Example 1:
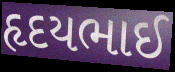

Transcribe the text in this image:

હૃદયભાઈ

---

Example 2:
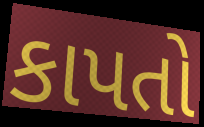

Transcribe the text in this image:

કાપતો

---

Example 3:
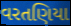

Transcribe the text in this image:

વરતણિયા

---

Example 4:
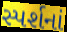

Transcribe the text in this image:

સ્પર્શનાં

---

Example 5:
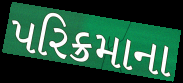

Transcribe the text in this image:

પરિક્રમાના